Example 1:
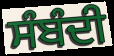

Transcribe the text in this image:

ਸੰਬੰਦੀ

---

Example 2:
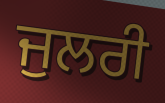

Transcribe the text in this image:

ਜੁਲਰੀ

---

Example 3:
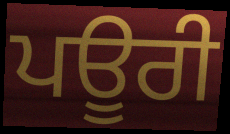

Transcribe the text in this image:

ਪਊਰੀ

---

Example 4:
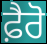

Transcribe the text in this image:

ਫ਼ੈਰੋ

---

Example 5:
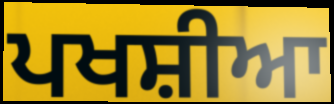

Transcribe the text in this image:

ਪਖਸ਼ੀਆ